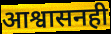
आश्वासनही